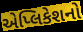
એપ્લિકેશનો